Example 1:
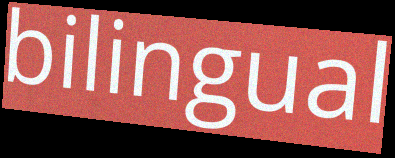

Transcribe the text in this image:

bilingual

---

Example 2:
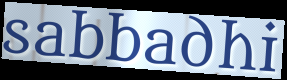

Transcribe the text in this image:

sabbadhi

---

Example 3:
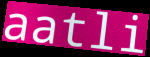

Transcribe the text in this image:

aatli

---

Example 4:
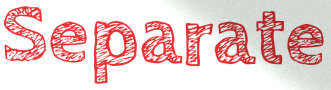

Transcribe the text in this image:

Separate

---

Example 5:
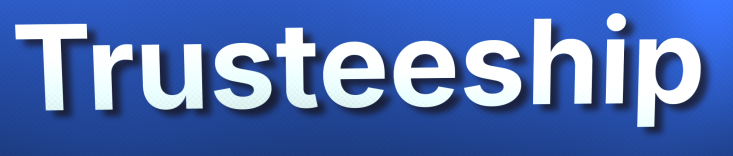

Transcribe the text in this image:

Trusteeship